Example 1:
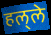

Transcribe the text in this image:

हल्ले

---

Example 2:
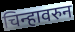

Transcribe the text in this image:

चिन्हावरुन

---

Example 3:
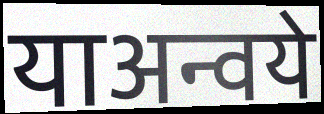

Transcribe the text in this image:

याअन्वये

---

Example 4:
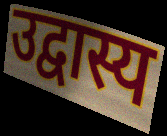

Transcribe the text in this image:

उद्वास्य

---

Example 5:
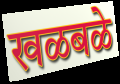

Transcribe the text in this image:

खळबळे